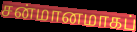
சன்மானமாகப்